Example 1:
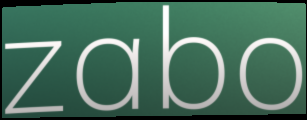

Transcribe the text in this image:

zabo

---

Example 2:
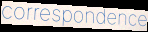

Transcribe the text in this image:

correspondence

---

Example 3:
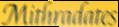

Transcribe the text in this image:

Mithradates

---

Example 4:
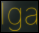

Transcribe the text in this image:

Iga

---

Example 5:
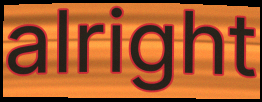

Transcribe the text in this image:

alright